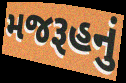
મજરૂહનું